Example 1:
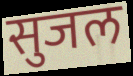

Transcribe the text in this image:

सुजल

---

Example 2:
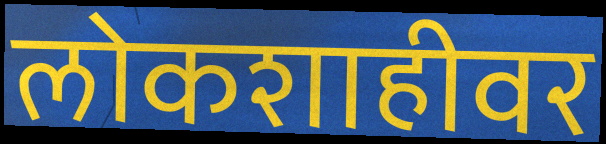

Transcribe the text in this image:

लोकशाहीवर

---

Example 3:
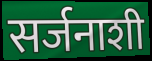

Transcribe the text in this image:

सर्जनाशी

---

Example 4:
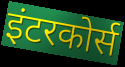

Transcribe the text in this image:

इंटरकोर्स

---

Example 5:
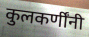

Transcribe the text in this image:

कुलकर्णींनी